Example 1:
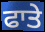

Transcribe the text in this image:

ਫਾਤੇ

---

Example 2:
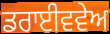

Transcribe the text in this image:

ਡਰਾਈਵਵੇਅ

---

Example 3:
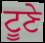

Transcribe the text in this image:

ਟੂਣੇ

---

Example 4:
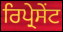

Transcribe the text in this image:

ਰਿਪ੍ਰੇਸੇੰਟ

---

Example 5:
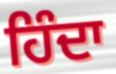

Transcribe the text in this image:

ਹਿੰਦਾ